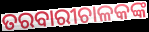
ତରବାରୀଚାଳକଙ୍କ